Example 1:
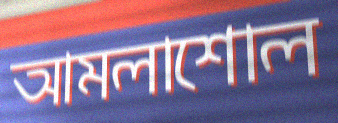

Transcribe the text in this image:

আমলাশোল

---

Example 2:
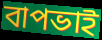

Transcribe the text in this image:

বাপভাই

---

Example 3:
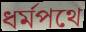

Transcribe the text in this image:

ধর্মপথে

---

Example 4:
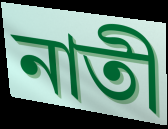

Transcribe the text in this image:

নাতী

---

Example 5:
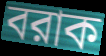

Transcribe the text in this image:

বরাক